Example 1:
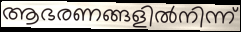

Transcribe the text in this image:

ആഭരണങ്ങളിൽനിന്ന്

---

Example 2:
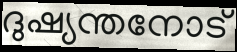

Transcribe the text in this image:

ദുഷ്യന്തനോട്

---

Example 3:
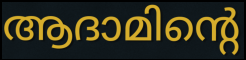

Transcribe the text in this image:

ആദാമിന്റെ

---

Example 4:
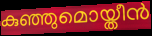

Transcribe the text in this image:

കുഞ്ഞുമൊയ്തീൻ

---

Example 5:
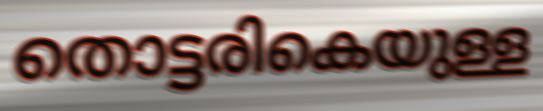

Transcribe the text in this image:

തൊട്ടരികെയുള്ള